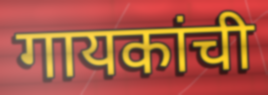
गायकांची